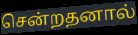
சென்றதனால்